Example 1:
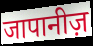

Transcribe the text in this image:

जापानीज़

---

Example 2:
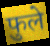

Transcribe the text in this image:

फुले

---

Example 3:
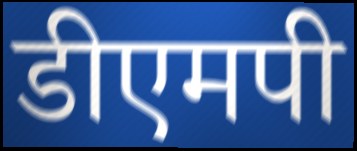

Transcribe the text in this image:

डीएमपी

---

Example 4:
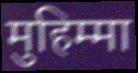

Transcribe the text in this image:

मुहिम्मा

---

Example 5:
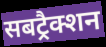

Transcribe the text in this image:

सबट्रैक्शन